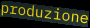
produzione